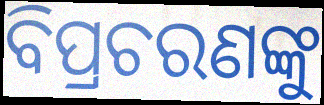
ବିପ୍ରଚରଣଙ୍କୁ